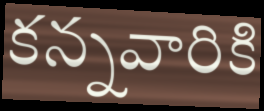
కన్నవారికి